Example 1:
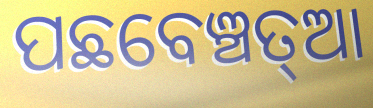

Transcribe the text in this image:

ପଛବେଞ୍ଚତ୍ଆ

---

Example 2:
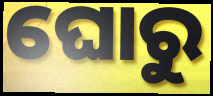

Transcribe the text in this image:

ଘୋରୁ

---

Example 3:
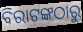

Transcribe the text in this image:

ବିରାଟଙ୍କଠାରୁ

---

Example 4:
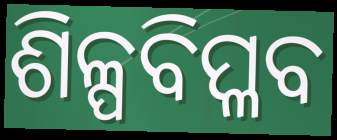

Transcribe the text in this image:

ଶିଳ୍ପବିପ୍ଳବ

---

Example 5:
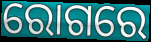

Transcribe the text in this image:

ରୋଗରେ